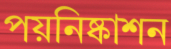
পয়নিষ্কাশন